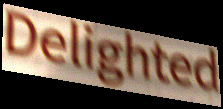
Delighted